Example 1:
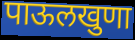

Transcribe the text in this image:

पाऊलखुणा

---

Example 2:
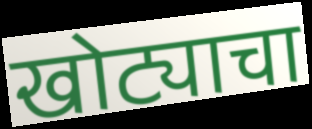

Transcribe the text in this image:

खोट्याचा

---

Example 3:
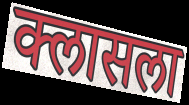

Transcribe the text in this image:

क्लासला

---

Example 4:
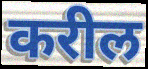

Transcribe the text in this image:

करील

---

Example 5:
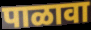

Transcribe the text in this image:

पाळावा